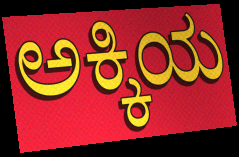
ಅಕ್ಕಿಯ